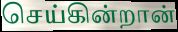
செய்கின்றான்